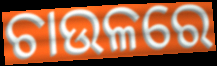
ଚାଉଳରେ